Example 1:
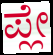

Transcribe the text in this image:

ಪ್ಲೇ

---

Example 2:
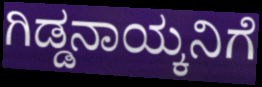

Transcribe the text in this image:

ಗಿಡ್ಡನಾಯ್ಕನಿಗೆ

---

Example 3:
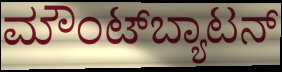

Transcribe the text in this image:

ಮೌಂಟ್‌ಬ್ಯಾಟನ್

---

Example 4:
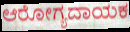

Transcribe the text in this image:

ಆರೋಗ್ಯದಾಯಕ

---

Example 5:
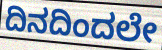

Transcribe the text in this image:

ದಿನದಿಂದಲೇ